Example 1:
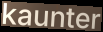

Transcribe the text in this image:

kaunter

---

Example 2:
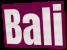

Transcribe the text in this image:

Bali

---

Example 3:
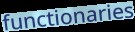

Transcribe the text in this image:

functionaries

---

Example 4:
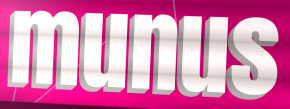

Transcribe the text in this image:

munus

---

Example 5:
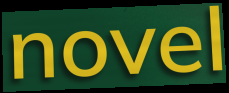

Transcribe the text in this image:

novel